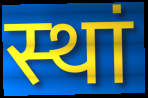
स्थां